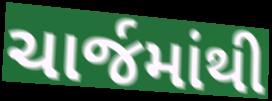
ચાર્જમાંથી